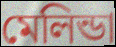
মেলিন্ডা